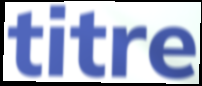
titre